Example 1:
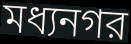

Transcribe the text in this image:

মধ্যনগর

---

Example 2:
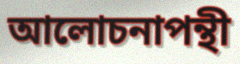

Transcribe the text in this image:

আলোচনাপন্থী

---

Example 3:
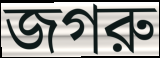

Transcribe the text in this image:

জগরু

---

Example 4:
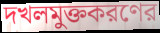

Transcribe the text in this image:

দখলমুক্তকরণের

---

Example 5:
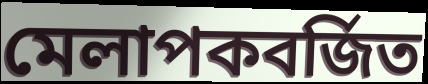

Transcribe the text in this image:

মেলাপকবর্জিত